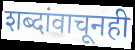
शब्दांवाचूनही